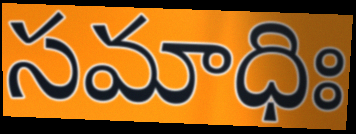
సమాధిః